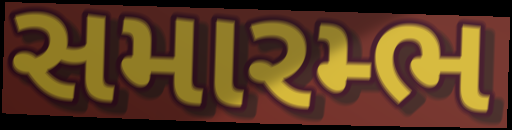
સમારમ્ભ